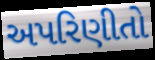
અપરિણીતો